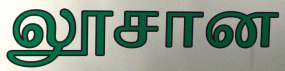
லூசான